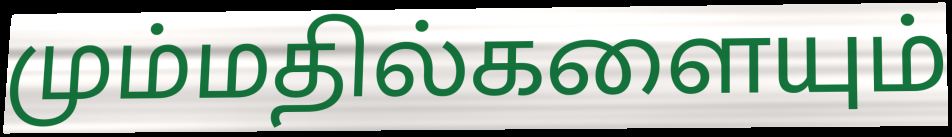
மும்மதில்களையும்